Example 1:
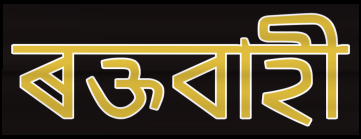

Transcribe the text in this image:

ৰক্তবাহী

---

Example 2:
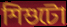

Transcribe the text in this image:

শিশুটো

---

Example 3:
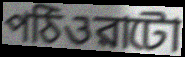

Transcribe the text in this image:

পঠিওৱাটো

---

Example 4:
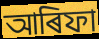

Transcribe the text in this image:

আৰিফা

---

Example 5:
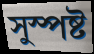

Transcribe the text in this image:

সুস্পষ্ট